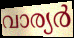
വാര്യർ